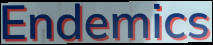
Endemics